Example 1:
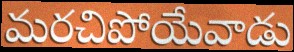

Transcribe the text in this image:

మరచిపోయేవాడు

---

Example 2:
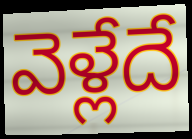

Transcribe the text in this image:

వెళ్లేదే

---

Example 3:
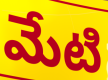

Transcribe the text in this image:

మేటి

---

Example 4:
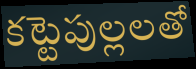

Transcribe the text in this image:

కట్టెపుల్లలతో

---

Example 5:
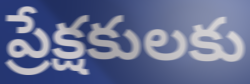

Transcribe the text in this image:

ప్రేక్షకులకు